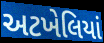
અટખેલિયાં